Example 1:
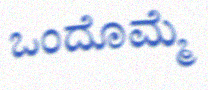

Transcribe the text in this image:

ಒಂದೊಮ್ಮೆ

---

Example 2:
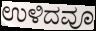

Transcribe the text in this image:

ಉಳಿದವೂ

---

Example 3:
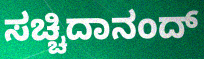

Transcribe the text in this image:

ಸಚ್ಚಿದಾನಂದ್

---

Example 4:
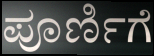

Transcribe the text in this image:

ಪೂರ್ಣಿಗೆ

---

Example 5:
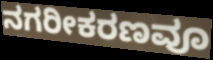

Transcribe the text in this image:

ನಗರೀಕರಣವೂ